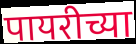
पायरीच्या